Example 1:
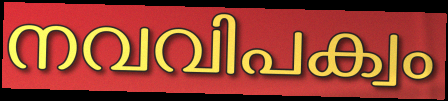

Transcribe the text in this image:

നവവിപക്വം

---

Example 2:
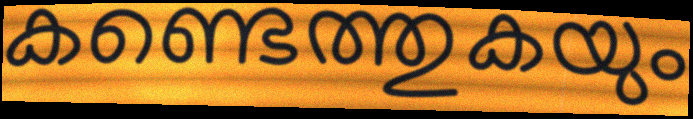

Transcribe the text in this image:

കണ്ടെത്തുകയും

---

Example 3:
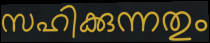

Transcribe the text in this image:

സഹിക്കുന്നതും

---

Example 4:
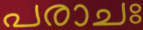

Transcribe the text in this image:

പരാചഃ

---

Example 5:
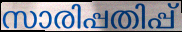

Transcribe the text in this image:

സാരിപ്പതിപ്പ്